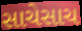
સાચેસાચ